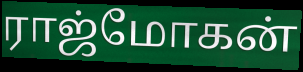
ராஜ்மோகன்